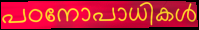
പഠനോപാധികൾ